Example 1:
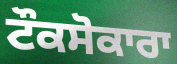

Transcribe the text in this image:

ਟੌਕਸੋਕਾਰਾ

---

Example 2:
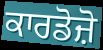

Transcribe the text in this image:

ਕਾਰਡੋਜ਼ੋ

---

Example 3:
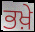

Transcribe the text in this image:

ਭਖ਼ੇ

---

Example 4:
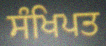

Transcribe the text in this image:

ਸੰਖਿਪਤ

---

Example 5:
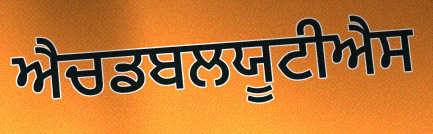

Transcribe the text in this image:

ਐਚਡਬਲਯੂਟੀਐਸ